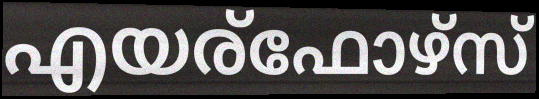
എയര്ഫോഴ്സ്